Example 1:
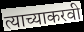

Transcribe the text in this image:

त्याच्याकरवी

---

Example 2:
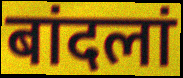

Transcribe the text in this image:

बांदलां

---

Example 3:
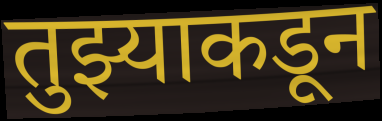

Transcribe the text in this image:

तुझ्याकडून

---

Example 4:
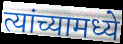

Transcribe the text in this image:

त्यांच्यामध्ये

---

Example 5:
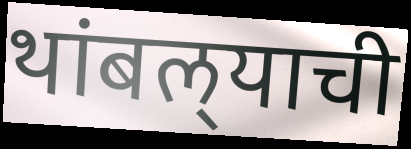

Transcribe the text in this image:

थांबल्याची